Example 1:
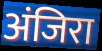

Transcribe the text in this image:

अंजिरा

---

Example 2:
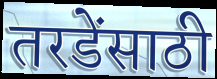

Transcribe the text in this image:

तरडेंसाठी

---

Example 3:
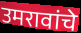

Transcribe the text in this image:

उमरावांचे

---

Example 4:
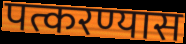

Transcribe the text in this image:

पत्करण्यास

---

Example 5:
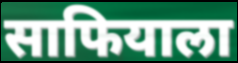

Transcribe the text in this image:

साफियाला